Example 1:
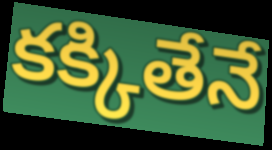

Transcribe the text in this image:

కక్కితేనే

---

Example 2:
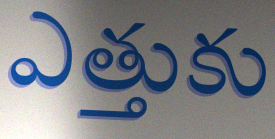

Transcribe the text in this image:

ఎత్తుకు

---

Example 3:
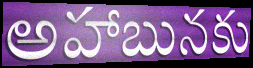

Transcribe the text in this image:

అహాబునకు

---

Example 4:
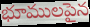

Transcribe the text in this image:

భూములపైన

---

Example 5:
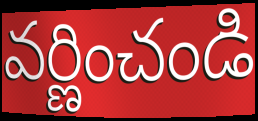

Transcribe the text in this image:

వర్ణించండి